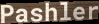
Pashler